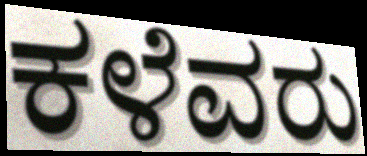
ಕಳೆವರು